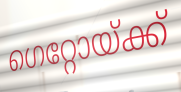
ഗെറ്റോയ്ക്ക്